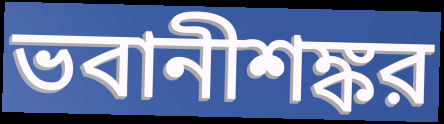
ভবানীশঙ্কর